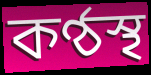
কণ্ঠস্থ